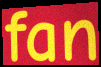
fan